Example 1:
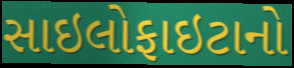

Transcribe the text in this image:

સાઇલોફાઇટાનો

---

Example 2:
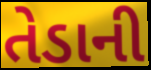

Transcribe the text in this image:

તેડાની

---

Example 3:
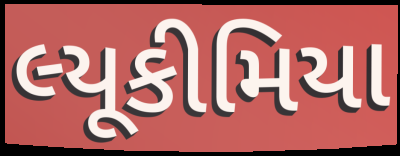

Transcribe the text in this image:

લ્યૂકીમિયા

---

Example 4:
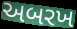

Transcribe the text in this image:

અબરખ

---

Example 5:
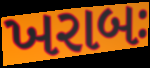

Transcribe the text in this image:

ખરાબઃ